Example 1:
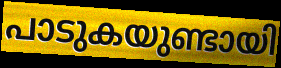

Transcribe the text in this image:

പാടുകയുണ്ടായി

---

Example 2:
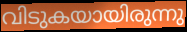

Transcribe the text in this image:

വിടുകയായിരുന്നു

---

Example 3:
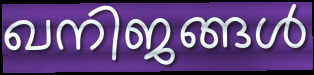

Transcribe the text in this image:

ഖനിജങ്ങൾ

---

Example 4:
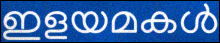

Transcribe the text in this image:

ഇളയമകൾ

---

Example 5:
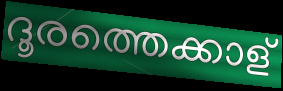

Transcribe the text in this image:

ദൂരത്തെക്കാള്